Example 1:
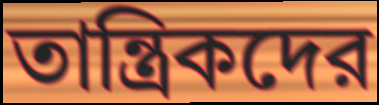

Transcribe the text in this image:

তান্ত্রিকদের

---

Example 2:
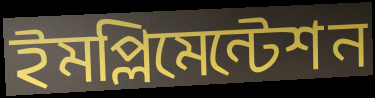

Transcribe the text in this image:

ইমপ্লিমেন্টেশন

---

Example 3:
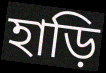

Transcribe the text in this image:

হাড়ি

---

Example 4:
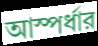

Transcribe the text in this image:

আস্পর্ধার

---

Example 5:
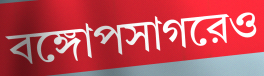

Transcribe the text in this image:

বঙ্গোপসাগরেও